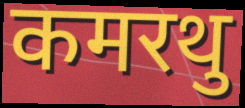
कमरथु